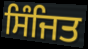
ਸਿੰਜਿਤ